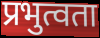
प्रभुत्वता